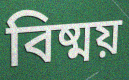
বিষ্ময়